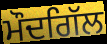
ਮੌਦਗਿੱਲ